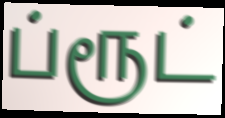
ப்ரூட்